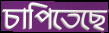
চাপিতেছে